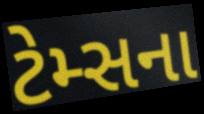
ટેમ્સના